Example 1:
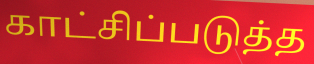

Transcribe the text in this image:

காட்சிப்படுத்த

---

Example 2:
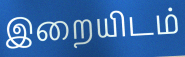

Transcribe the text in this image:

இறையிடம்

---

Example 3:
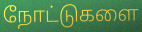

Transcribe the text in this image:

நோட்டுகளை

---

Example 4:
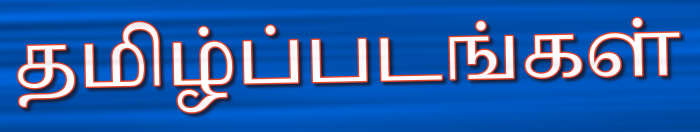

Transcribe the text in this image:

தமிழ்ப்படங்கள்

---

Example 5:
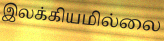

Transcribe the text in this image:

இலக்கியமில்லை